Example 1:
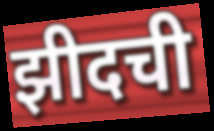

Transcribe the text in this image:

झीदची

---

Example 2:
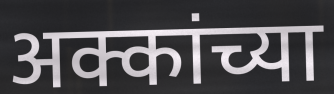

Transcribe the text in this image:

अक्कांच्या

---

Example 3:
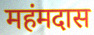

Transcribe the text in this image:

महंमदास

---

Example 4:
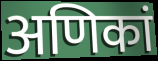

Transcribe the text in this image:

अणिकां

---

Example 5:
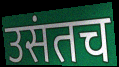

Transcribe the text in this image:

उसंतच